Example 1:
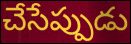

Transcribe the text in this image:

చేసేప్పుడు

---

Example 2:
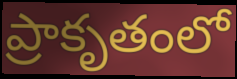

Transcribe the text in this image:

ప్రాకృతంలో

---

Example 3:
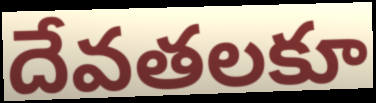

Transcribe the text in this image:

దేవతలకూ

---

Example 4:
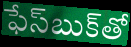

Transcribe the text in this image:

ఫేస్‌బుక్‌తో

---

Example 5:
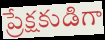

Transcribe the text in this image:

ప్రేక్షకుడిగా